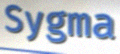
Sygma